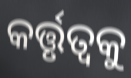
କର୍ତ୍ତୃତ୍ୱକୁ